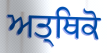
ਅਤ੍ਥਿਕੋ